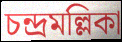
চন্দ্রমল্লিকা